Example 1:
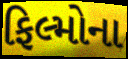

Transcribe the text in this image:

ફિલ્મોના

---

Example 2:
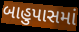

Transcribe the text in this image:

બાહુપાસમાં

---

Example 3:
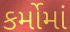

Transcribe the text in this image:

કર્મોમાં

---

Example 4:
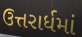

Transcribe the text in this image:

ઉત્તરાર્ધમાં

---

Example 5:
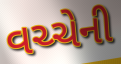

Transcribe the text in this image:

વચ્ચેની